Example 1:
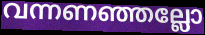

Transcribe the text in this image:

വന്നണഞ്ഞല്ലോ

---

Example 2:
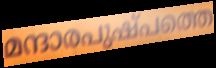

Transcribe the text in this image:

മന്ദാരപുഷ്പത്തെ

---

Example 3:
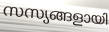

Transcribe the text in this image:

സസ്യങ്ങളായി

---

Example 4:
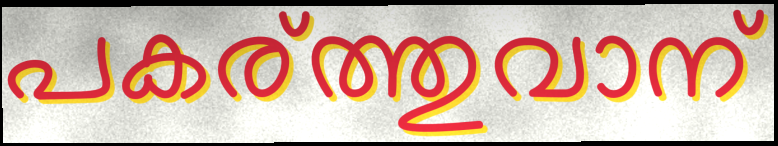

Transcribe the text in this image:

പകര്ത്തുവാന്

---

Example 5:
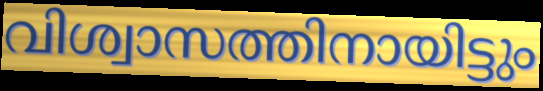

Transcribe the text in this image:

വിശ്വാസത്തിനായിട്ടും